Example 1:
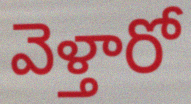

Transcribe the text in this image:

వెళ్తారో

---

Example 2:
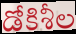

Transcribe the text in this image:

డోకిశీల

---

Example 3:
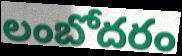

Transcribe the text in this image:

లంబోదరం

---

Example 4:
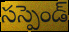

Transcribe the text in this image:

సస్పెండ్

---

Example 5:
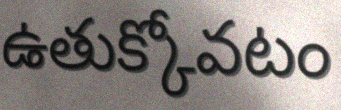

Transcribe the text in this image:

ఉతుక్కోవటం